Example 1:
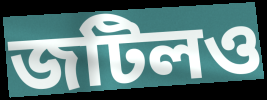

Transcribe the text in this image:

জটিলও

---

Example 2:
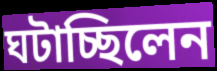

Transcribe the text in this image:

ঘটাচ্ছিলেন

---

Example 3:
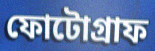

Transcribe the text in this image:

ফোটোগ্রাফ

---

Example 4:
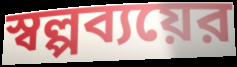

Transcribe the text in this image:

স্বল্পব্যয়ের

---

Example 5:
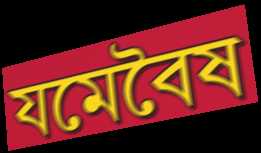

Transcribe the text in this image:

যমেবৈষ